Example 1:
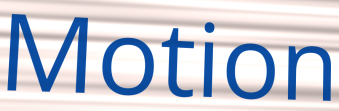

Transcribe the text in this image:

Motion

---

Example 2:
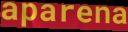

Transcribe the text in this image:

aparena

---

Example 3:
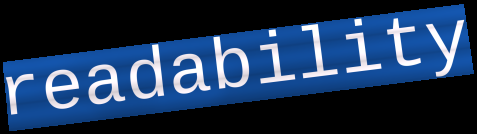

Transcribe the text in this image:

readability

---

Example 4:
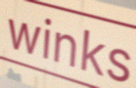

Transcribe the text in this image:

winks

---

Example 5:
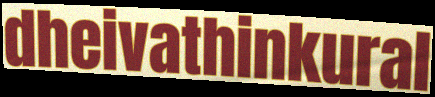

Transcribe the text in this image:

dheivathinkural